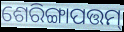
ଶେରିଙ୍ଗାପତ୍ତମ୍